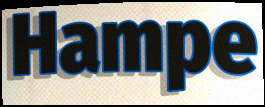
Hampe